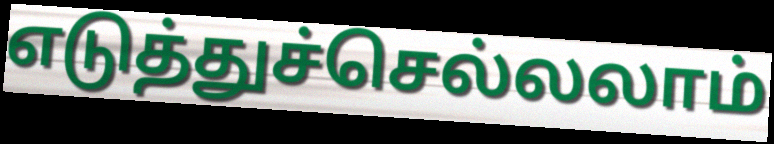
எடுத்துச்செல்லலாம்